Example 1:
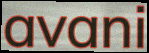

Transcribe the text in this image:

avani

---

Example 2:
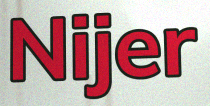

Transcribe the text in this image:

Nijer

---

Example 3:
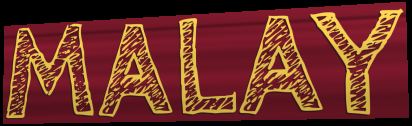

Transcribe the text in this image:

MALAY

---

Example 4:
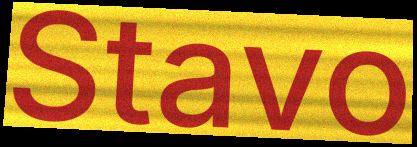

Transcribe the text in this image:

Stavo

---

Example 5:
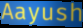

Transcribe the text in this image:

Aayush